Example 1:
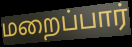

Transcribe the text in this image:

மறைப்பார்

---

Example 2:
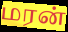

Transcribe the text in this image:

மரன்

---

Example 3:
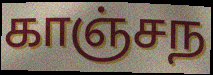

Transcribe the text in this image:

காஞ்சந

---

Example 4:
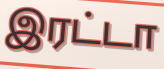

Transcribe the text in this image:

இரட்டா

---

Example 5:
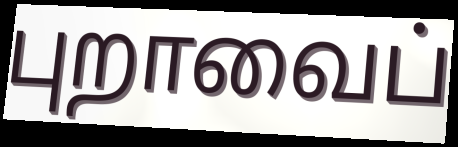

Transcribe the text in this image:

புறாவைப்